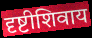
दृष्टीशिवाय